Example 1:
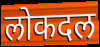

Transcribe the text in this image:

लोकदल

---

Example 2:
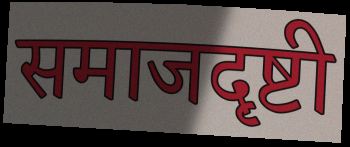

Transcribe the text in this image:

समाजदृष्टी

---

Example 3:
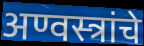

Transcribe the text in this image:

अण्वस्त्रांचे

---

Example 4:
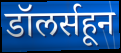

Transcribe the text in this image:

डॉलर्सहून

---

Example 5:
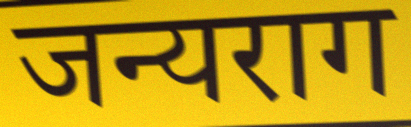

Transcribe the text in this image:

जन्यराग